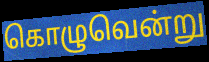
கொழுவென்று